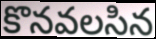
కొనవలసిన